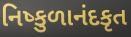
નિષ્કુળાનંદકૃત